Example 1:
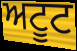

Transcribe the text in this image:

ਅਟੂਟ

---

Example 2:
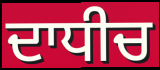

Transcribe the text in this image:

ਦਾਧੀਚ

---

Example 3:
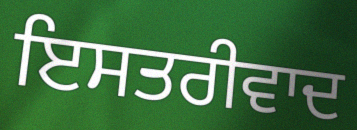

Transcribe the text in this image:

ਇਸਤਰੀਵਾਦ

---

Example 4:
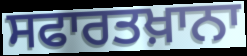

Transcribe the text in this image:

ਸਫਾਰਤਖ਼ਾਨਾ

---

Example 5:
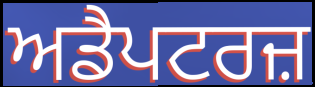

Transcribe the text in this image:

ਅਡੈਪਟਰਜ਼